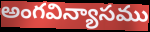
అంగవిన్యాసము